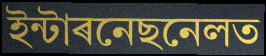
ইন্টাৰনেছনেলত